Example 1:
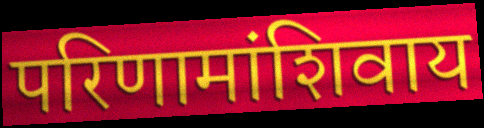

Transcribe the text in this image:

परिणामांशिवाय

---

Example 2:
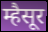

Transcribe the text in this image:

म्हैसूर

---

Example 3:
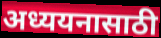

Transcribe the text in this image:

अध्ययनासाठी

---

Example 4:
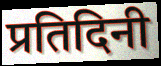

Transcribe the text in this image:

प्रतिदिनी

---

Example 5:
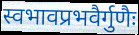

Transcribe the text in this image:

स्वभावप्रभवैर्गुणैः